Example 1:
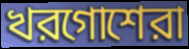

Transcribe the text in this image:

খরগোশেরা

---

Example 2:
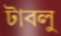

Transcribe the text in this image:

টাবলু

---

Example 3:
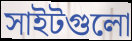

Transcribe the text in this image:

সাইটগুলো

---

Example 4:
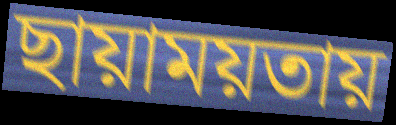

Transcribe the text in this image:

ছায়াময়তায়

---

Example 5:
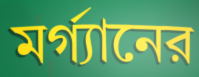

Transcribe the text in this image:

মর্গ্যানের